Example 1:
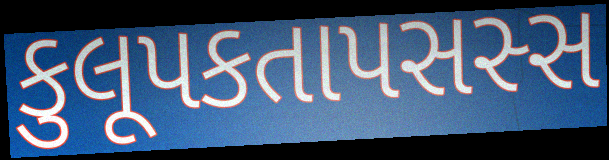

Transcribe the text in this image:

કુલૂપકતાપસસ્સ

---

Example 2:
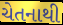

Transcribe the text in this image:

ચેતનાથી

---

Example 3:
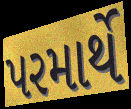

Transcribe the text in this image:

પરમાર્થે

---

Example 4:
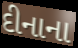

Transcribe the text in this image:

દીનાના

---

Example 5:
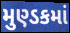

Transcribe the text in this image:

મુણ્ડકમાં